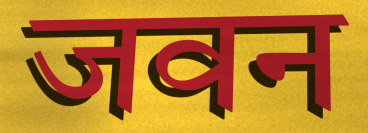
जवन